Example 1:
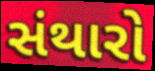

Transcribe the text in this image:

સંથારો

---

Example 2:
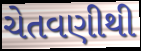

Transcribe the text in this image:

ચેતવણીથી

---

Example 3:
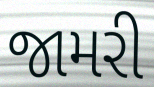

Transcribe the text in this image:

જામરી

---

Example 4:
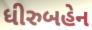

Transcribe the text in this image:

ધીરુબહેન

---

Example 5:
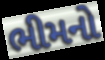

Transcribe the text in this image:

ભીમનો